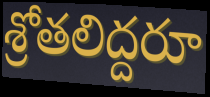
శ్రోతలిద్దరూ